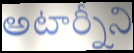
అటార్నీని